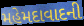
મહેમદાવાદની